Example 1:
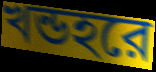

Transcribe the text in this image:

খন্ডহরে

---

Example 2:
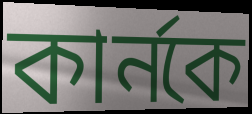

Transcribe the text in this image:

কার্নকে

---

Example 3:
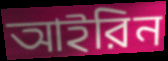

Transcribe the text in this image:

আইরিন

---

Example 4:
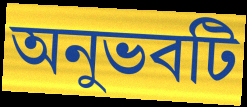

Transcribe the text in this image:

অনুভবটি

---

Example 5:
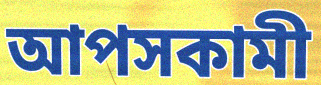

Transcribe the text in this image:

আপসকামী